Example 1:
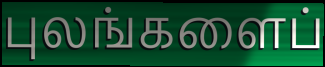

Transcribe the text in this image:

புலங்களைப்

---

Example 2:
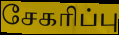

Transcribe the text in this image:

சேகரிப்பு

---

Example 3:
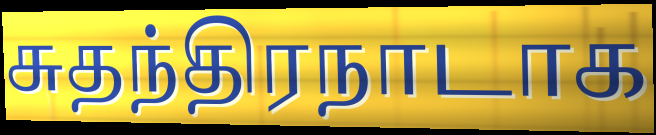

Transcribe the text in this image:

சுதந்திரநாடாக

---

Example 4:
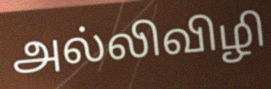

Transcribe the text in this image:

அல்லிவிழி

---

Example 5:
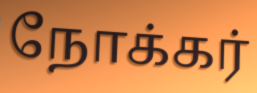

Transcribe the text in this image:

நோக்கர்